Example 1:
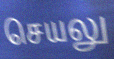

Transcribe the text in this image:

செயலு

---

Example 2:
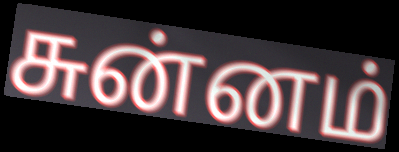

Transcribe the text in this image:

சுன்னம்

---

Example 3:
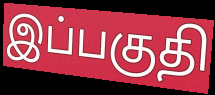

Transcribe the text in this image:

இப்பகுதி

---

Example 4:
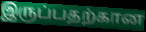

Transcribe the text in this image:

இருப்பதற்கான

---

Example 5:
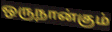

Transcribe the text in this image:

ஒருநான்கும்